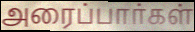
அரைப்பார்கள்